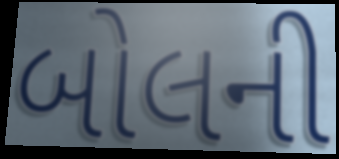
બોલની